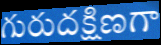
గురుదక్షిణగా